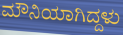
ಮೌನಿಯಾಗಿದ್ದಳು